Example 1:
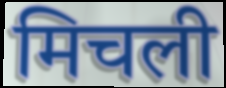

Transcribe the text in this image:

मिचली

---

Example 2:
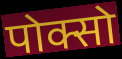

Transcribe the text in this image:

पोक्सो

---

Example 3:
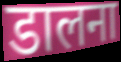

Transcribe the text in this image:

डालना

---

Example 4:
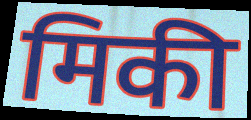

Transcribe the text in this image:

मिकी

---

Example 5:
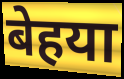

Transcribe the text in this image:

बेहया